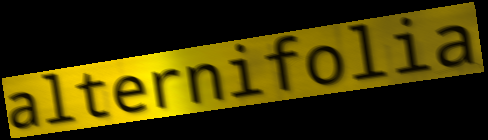
alternifolia